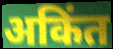
अकिंत